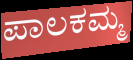
ಪಾಲಕಮ್ಮ